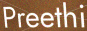
Preethi